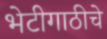
भेटीगाठीचे